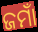
ଜମାଁ